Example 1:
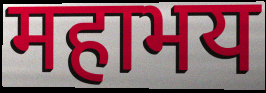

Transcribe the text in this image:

महाभय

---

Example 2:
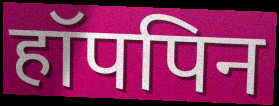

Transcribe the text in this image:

हॉपपिन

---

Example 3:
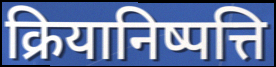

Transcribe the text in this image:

क्रियानिष्पत्ति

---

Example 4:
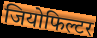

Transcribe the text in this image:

जियोफिल्टर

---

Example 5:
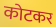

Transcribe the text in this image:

कोटकर